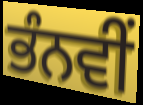
ਭੰਨਵੀਂ